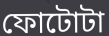
ফোটোটা